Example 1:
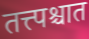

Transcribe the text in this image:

तत्त्पश्चात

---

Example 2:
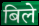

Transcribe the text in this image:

बिले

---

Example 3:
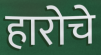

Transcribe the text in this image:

हारोचे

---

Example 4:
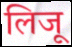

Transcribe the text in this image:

लिजू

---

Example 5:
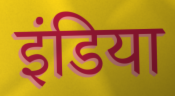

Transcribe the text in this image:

इंडिया